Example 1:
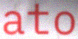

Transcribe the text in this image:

ato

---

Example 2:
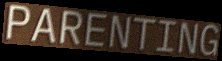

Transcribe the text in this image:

PARENTING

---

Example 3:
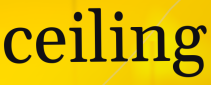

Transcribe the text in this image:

ceiling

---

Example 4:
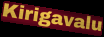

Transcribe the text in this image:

Kirigavalu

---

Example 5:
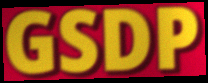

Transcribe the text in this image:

GSDP